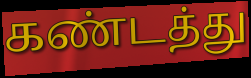
கண்டத்து